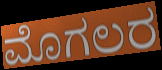
ಮೊಗಲರ